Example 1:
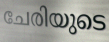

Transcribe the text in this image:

ചേരിയുടെ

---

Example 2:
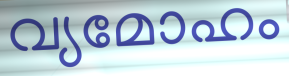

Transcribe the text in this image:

വ്യമോഹം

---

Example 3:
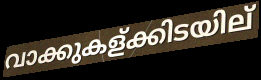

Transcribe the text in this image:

വാക്കുകള്ക്കിടയില്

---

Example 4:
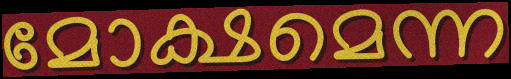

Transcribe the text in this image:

മോക്ഷമെന്ന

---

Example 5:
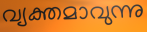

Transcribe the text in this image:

വ്യക്തമാവുന്നു